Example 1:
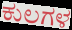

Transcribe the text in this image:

ಕುಲಗಳ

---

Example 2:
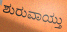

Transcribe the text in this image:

ಶುರುವಾಯ್ತು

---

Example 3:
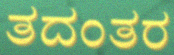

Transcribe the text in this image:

ತದಂತರ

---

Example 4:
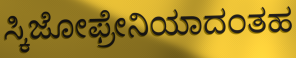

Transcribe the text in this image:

ಸ್ಕಿಜೋಫ್ರೇನಿಯಾದಂತಹ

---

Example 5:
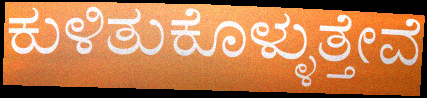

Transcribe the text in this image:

ಕುಳಿತುಕೊಳ್ಳುತ್ತೇವೆ